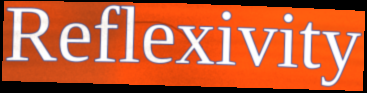
Reflexivity